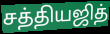
சத்தியஜித்